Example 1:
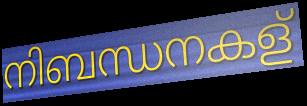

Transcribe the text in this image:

നിബന്ധനകള്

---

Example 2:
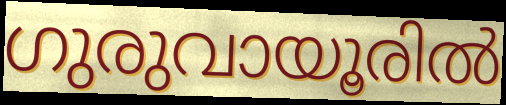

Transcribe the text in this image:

ഗുരുവായൂരിൽ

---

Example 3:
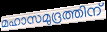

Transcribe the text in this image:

മഹാസമുദ്രത്തിന്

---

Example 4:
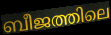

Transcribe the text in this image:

ബീജത്തിലെ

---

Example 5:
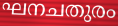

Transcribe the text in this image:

ഘനചതുരം